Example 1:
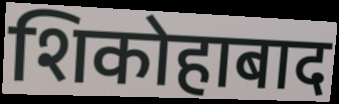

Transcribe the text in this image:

शिकोहाबाद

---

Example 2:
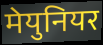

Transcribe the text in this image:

मेयुनियर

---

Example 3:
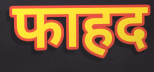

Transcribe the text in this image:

फाहद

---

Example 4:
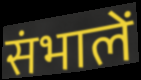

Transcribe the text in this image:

संभालें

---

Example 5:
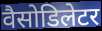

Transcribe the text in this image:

वैसोडिलेटर